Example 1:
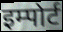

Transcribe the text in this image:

इम्पोर्ट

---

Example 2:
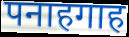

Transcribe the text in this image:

पनाहगाह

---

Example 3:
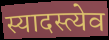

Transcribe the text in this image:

स्यादस्त्येव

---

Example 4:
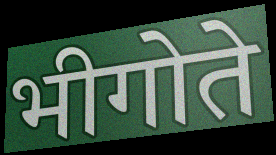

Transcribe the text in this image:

भीगोते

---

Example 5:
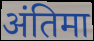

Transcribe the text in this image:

अंतिमा